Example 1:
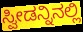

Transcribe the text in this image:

ಸ್ವೀಡನ್ನಿನಲ್ಲಿ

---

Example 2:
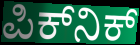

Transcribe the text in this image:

ಪಿಕ್‌ನಿಕ್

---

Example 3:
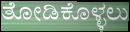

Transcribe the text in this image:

ತೋಡಿಕೊಳ್ಳಲು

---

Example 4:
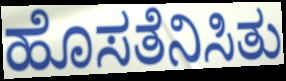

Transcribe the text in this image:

ಹೊಸತೆನಿಸಿತು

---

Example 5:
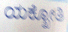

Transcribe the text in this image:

ಯಕ್ಖೋತಿ